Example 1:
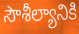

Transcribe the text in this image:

సౌశీల్యానికి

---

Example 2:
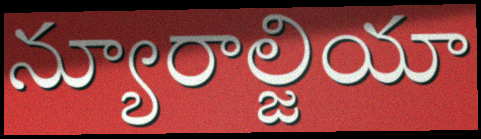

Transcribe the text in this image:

న్యూరాల్జియా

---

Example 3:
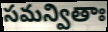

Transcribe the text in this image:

సమన్వితాః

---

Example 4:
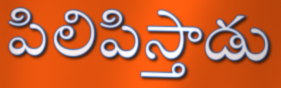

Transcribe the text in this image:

పిలిపిస్తాడు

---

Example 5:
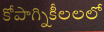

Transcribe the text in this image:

కోపాగ్నికీలలలో